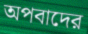
অপবাদের